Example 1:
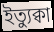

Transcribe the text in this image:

ইত্যুক্বা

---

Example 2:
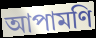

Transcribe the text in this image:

আপামণি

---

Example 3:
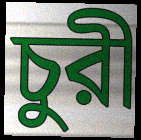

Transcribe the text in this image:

চুরী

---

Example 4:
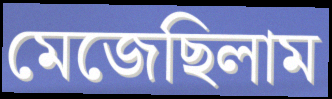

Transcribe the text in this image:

মেজেছিলাম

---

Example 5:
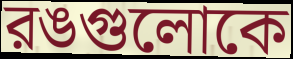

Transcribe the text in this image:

রঙগুলোকে